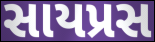
સાયપ્રસ